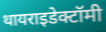
थायराइडेक्टॉमी